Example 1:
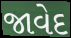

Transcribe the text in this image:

જાવેદ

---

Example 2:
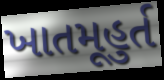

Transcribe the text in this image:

ખાતમૂહુર્ત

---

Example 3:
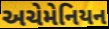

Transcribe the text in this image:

અચેમેનિયન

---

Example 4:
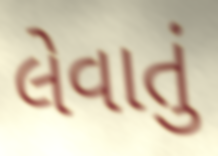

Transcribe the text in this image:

લેવાતું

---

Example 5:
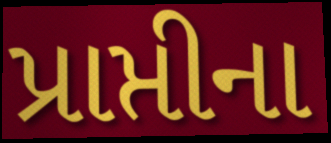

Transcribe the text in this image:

પ્રાપ્તીના